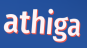
athiga